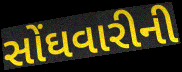
સોંઘવારીની